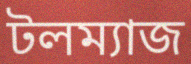
টলম্যাজ